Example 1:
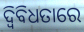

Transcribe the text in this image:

ଦ୍ୱିବିଧତାରେ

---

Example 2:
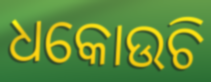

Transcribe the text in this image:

ଧକୋଉଚି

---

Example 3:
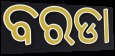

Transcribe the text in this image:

ବରଡା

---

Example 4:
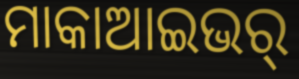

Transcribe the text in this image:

ମାକାଆଇଭର୍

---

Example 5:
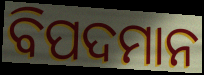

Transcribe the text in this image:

ବିପଦମାନ